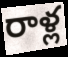
రాళ్ల